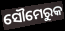
ସୌମେରୁକ